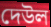
দেউল